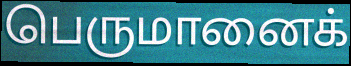
பெருமானைக்